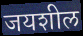
जयशील